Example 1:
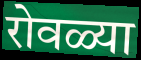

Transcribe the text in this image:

रोवळ्या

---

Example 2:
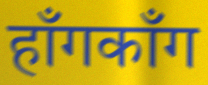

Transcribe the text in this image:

हाँगकाँग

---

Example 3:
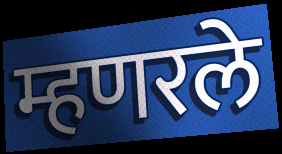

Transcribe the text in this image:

म्हणरले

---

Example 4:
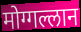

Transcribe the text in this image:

मोग्गल्लान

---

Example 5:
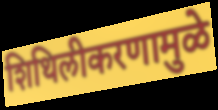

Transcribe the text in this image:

शिथिलीकरणामुळे